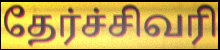
தேர்ச்சிவரி